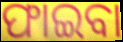
ଫାଇବା